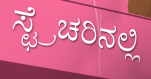
ಸ್ಟ್ರೆಚರಿನಲ್ಲಿ